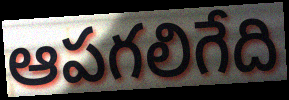
ఆపగలిగేది